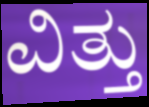
ವಿತ್ತು